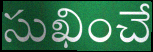
సుఖించే